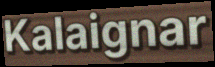
Kalaignar